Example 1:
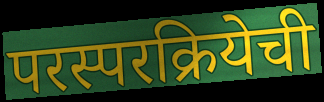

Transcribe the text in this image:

परस्परक्रियेची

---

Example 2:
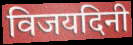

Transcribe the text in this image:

विजयदिनी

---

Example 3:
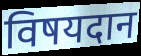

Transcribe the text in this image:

विषयदान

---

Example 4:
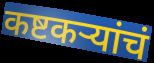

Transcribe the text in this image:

कष्टकऱ्यांचं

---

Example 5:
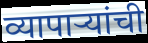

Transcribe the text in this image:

व्यापाऱ्यांची